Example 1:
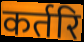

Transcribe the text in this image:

कर्तरि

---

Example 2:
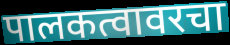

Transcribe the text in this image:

पालकत्वावरचा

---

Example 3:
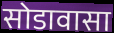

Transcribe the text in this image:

सोडावासा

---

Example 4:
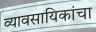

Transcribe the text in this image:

व्यावसायिकांचा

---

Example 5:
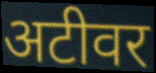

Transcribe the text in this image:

अटीवर